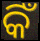
କିଁ